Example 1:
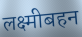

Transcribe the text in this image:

लक्ष्मीबहन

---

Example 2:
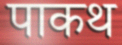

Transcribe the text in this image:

पाकथ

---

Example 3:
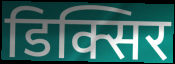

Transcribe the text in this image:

डिक्सिर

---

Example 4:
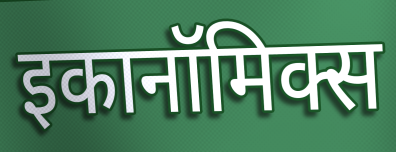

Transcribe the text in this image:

इकानॉमिक्स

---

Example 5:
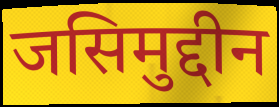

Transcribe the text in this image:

जसिमुद्दीन